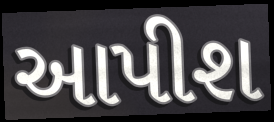
આપીશ